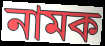
নামক